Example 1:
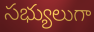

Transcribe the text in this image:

సభ్యులుగా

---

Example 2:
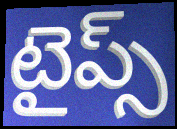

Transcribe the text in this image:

టైప్స్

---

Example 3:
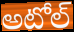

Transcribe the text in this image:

అటోల్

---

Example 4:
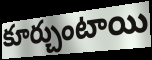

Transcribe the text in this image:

కూర్చుంటాయి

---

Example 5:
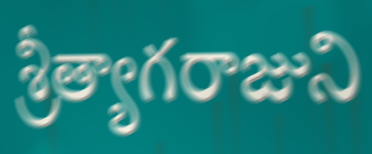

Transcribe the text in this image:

శ్రీత్యాగరాజుని